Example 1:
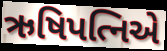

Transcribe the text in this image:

ઋષિપત્નિએ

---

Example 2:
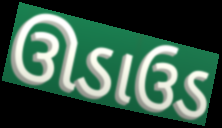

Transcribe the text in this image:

ઊડાઉડ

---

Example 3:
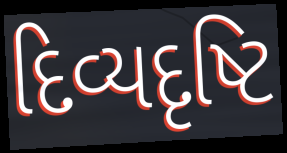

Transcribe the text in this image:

દિવ્યદૃષ્ટિ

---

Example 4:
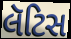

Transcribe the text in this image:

લૅટિસ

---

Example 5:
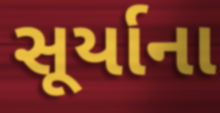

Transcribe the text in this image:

સૂર્યાના